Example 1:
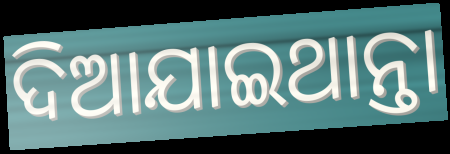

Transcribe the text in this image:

ଦିଆଯାଇଥାନ୍ତା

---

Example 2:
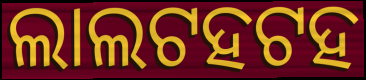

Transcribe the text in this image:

ଲାଲଟହଟହ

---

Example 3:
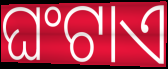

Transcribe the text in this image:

ଘଂଟାଏ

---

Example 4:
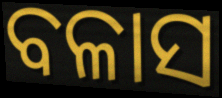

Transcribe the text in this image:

ବଳାସ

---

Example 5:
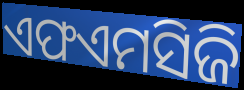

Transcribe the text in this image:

ଏଫଏମସିଜି